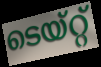
ടെയ്റ്റ്